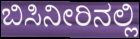
ಬಿಸಿನೀರಿನಲ್ಲಿ